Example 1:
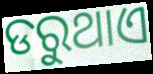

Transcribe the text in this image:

ଡରୁଥାଏ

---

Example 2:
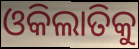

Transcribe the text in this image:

ଓକିଲାତିକୁ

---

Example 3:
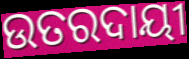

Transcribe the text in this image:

ଉତରଦାୟୀ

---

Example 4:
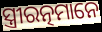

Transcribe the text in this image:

ସ୍ତ୍ରୀରତ୍ନମାନେ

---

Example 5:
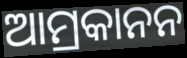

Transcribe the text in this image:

ଆମ୍ରକାନନ